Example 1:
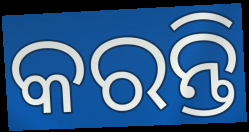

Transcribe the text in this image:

କରନ୍ତି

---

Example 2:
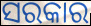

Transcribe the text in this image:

ସରକାର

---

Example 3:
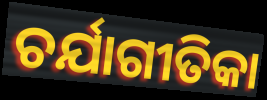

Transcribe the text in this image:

ଚର୍ଯାଗୀତିକା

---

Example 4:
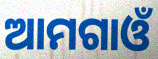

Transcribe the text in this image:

ଆମଗାଓଁ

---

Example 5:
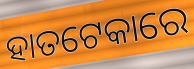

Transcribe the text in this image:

ହାତଟେକାରେ